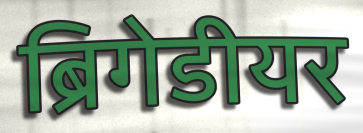
ब्रिगेडीयर